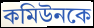
কমিউনকে